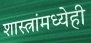
शास्त्रांमध्येही